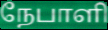
நேபாளி